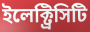
ইলেক্ট্রিসিটি